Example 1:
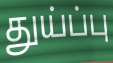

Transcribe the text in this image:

துய்ப்பு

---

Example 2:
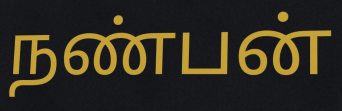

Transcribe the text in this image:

நண்பன்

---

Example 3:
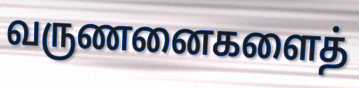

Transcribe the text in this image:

வருணனைகளைத்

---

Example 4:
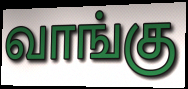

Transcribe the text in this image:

வாங்கு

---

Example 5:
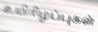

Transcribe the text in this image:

உயிரிழப்புகள்